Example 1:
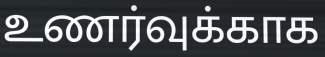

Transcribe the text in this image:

உணர்வுக்காக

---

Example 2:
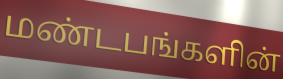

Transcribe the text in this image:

மண்டபங்களின்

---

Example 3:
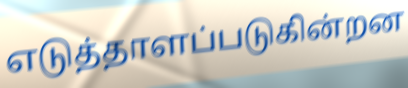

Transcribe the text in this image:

எடுத்தாளப்படுகின்றன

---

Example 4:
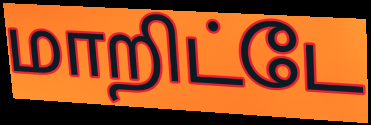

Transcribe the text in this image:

மாறிட்டே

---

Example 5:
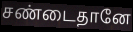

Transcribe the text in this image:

சண்டைதானே